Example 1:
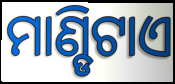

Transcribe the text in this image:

ମାଣ୍ଡିଟାଏ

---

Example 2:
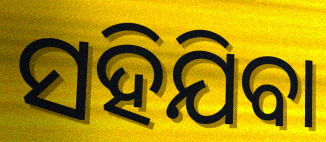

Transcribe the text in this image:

ସହିଯିବା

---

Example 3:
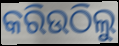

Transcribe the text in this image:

କରିଉଠିଲୁ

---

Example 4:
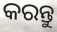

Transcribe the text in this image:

କରନ୍ତୁ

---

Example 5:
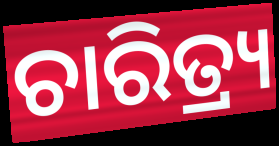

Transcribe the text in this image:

ଚାରିତ୍ର୍ୟ